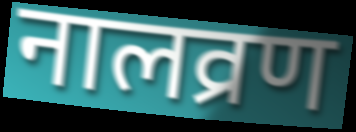
नालव्रण